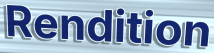
Rendition